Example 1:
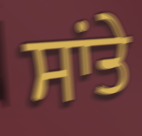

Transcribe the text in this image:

ਸਾਂਤੇ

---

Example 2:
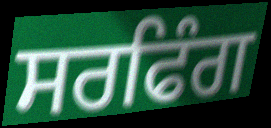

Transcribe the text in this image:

ਸਰਫਿੰਗ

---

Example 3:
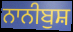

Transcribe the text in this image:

ਨਾਨੀਬੁਸ਼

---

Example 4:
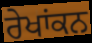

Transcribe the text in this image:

ਰੇਖਾਂਕਨ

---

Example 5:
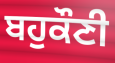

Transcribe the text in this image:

ਬਹੁਕੌਣੀ